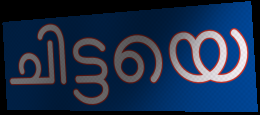
ചിട്ടയെ